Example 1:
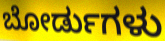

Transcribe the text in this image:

ಬೋರ್ಡುಗಳು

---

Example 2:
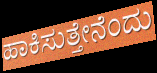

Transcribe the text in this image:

ಹಾಕಿಸುತ್ತೇನೆಂದು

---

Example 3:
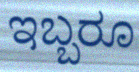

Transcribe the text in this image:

ಇಬ್ಬರೂ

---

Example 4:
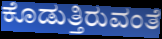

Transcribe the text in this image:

ಕೊಡುತ್ತಿರುವಂತೆ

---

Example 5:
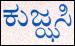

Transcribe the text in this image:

ಕುಜ್ಝಸಿ